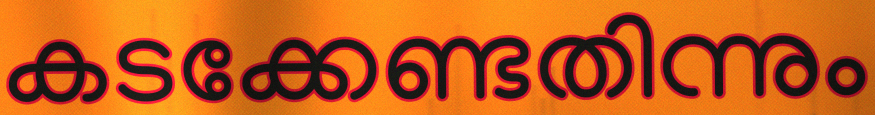
കടക്കേണ്ടതിന്നും